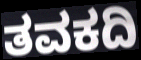
ತವಕದಿ